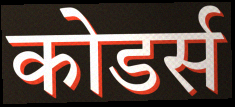
कोडर्स